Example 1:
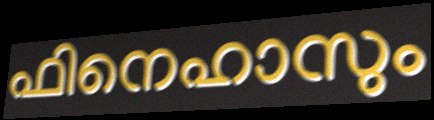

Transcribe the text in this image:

ഫിനെഹാസും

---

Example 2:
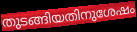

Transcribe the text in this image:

തുടങ്ങിയതിനുശേഷം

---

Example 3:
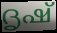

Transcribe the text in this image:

ദൃഷ്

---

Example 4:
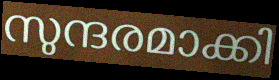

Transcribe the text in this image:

സുന്ദരമാക്കി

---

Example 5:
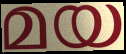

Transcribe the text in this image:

മയ